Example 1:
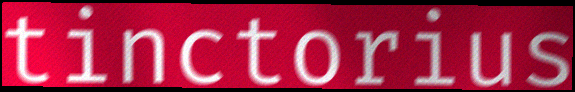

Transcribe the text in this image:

tinctorius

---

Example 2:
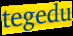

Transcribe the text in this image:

tegedu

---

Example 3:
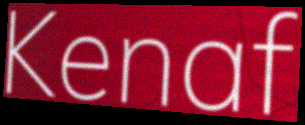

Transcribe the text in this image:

Kenaf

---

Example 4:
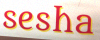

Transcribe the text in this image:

sesha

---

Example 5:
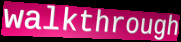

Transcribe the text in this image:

walkthrough